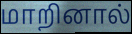
மாறினால்